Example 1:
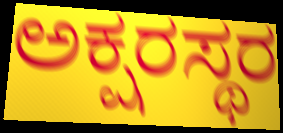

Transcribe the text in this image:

ಅಕ್ಷರಸ್ಥರ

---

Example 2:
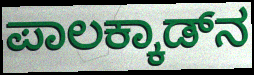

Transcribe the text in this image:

ಪಾಲಕ್ಕಾಡ್‌ನ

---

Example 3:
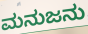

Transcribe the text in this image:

ಮನುಜನು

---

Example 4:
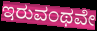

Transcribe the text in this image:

ಇರುವಂಥವೇ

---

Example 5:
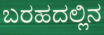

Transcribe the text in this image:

ಬರಹದಲ್ಲಿನ